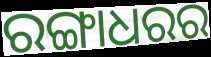
ରଙ୍ଗାଧରର